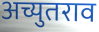
अच्युतराव